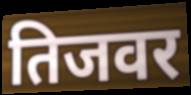
तिजवर